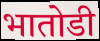
भातोडी